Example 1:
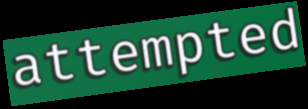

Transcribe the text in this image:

attempted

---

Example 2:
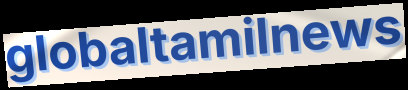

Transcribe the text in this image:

globaltamilnews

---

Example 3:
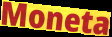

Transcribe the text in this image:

Moneta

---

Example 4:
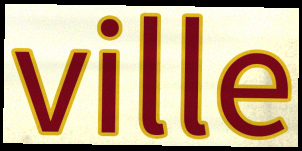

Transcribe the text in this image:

ville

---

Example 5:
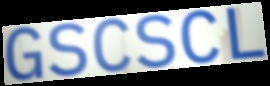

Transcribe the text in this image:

GSCSCL